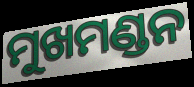
ମୁଖମଣ୍ଡନ